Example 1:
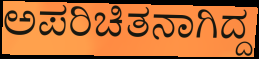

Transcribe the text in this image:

ಅಪರಿಚಿತನಾಗಿದ್ದ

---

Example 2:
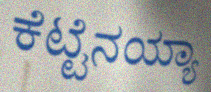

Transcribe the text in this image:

ಕೆಟ್ಟೆನಯ್ಯಾ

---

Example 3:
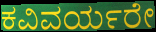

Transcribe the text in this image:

ಕವಿವರ್ಯರೇ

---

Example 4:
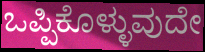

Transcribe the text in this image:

ಒಪ್ಪಿಕೊಳ್ಳುವುದೇ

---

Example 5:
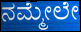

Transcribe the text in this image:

ನಮ್ಮೇಲೇ